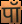
पॉ